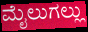
ಮೈಲುಗಲ್ಲು